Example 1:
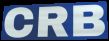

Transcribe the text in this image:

CRB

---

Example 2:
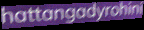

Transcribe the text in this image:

hattangadyrohini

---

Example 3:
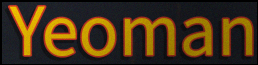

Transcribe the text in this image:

Yeoman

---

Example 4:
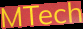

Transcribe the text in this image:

MTech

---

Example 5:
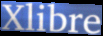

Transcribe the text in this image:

Xlibre